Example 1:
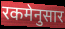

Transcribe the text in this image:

रकमेनुसार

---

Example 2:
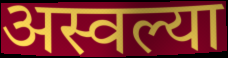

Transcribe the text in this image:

अस्वल्या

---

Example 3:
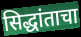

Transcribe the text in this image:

सिद्धांताचा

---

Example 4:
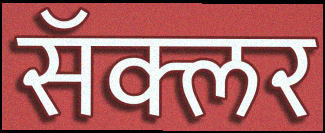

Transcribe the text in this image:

सॅक्लर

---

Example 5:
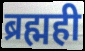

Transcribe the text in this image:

ब्रह्मही